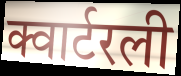
क्वार्टरली